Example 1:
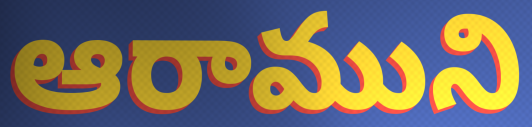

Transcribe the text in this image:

ఆరాముని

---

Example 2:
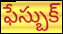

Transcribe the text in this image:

ఫేస్బుక్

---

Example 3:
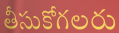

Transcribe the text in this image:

తీసుకోగలరు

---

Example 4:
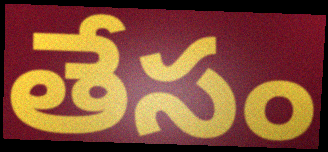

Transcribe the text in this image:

తేసం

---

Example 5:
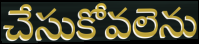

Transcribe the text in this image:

చేసుకోవలెను